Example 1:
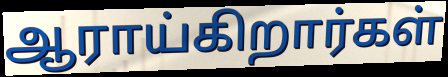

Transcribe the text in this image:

ஆராய்கிறார்கள்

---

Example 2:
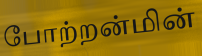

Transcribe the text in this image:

போற்றன்மின்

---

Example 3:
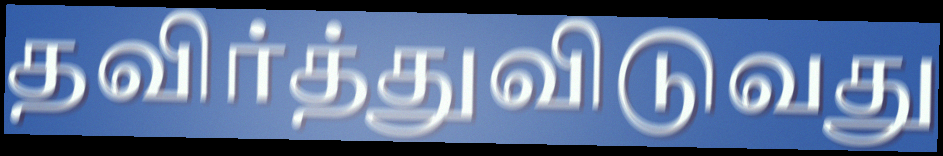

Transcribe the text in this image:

தவிர்த்துவிடுவது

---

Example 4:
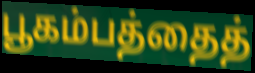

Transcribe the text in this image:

பூகம்பத்தைத்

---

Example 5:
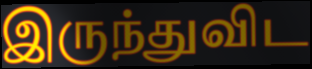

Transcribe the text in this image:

இருந்துவிட